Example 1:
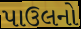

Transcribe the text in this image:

પાઉલનો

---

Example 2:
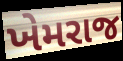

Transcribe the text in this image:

ખેમરાજ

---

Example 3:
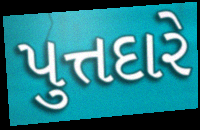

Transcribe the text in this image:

પુત્તદારે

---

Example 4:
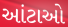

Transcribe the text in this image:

આંટાઓ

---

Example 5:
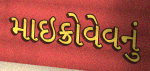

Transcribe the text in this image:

માઇક્રોવેવનું